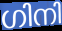
ഗിനി